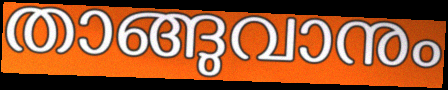
താങ്ങുവാനും